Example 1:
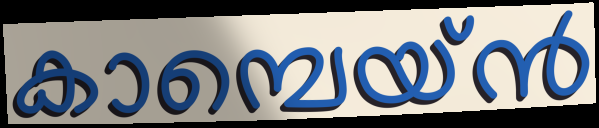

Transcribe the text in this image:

കാമ്പെയ്ൻ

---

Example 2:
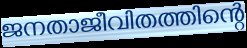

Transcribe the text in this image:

ജനതാജീവിതത്തിന്റെ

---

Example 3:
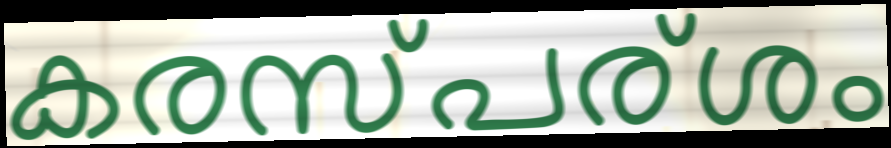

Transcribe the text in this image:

കരസ്പര്ശം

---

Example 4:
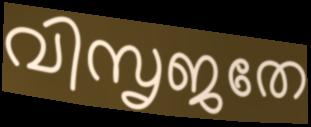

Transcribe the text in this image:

വിസൃജതേ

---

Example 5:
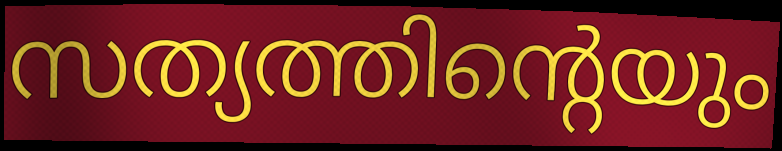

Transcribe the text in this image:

സത്യത്തിന്റെയും